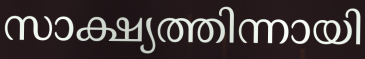
സാക്ഷ്യത്തിന്നായി